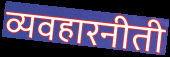
व्यवहारनीती